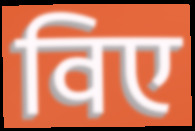
विए